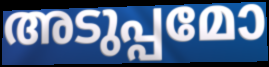
അടുപ്പമോ